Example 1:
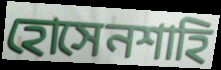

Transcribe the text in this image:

হোসেনশাহি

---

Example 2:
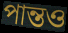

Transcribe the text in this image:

পান্তও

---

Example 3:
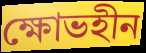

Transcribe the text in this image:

ক্ষোভহীন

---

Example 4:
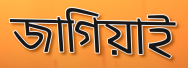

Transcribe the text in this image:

জাগিয়াই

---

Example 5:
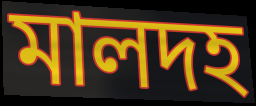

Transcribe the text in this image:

মালদহ